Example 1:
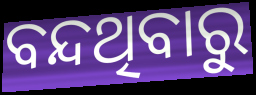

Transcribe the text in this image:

ବନ୍ଦଥିବାରୁ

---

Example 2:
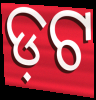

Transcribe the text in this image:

ଡ଼ଟ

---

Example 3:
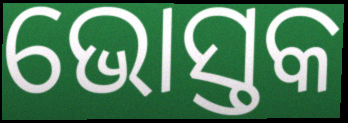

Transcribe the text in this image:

ଭୋସ୍ତକ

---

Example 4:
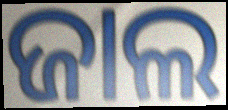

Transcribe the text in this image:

ଜାଲ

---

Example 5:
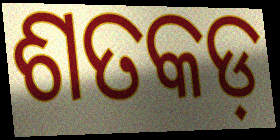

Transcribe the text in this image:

ଶତକଡ଼